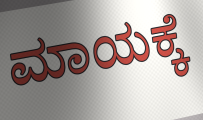
ಮಾಯಕ್ಕೆ